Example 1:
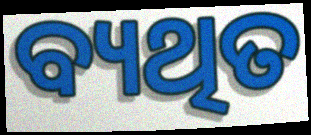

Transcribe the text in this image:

ବ୍ୟଥିତ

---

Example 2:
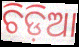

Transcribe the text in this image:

ଚିଡ଼ିଆ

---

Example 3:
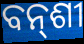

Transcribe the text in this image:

ବନ୍‍ଶୀ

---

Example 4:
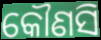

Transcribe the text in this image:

କୌଣସି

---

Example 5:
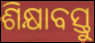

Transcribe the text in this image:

ଶିକ୍ଷାବସ୍ତୁ